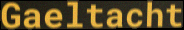
Gaeltacht